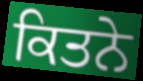
ਕਿਤਨੇ